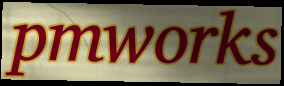
pmworks